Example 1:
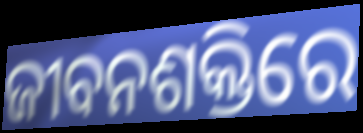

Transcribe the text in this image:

ଜୀବନଶକ୍ତିରେ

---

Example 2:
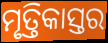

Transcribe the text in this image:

ମୃତ୍ତିକାସ୍ତର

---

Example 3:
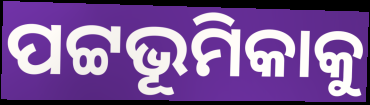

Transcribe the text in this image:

ପଟ୍ଟଭୂମିକାକୁ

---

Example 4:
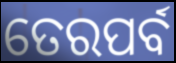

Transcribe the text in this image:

ତେରପର୍ବ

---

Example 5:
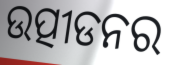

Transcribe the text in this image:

ଉତ୍ପୀଡନର